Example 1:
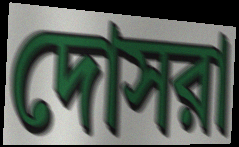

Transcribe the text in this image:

দোসরা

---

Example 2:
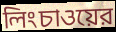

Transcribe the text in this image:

লিংচাওয়ের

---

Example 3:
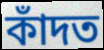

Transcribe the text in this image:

কাঁদত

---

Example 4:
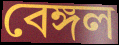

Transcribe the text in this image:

বেঙ্গল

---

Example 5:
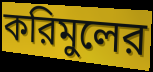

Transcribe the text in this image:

করিমুলের